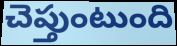
చెప్తుంటుంది